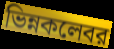
ভিন্নকলেবর